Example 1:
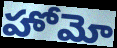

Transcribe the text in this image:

హోమో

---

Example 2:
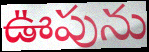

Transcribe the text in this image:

ఊపును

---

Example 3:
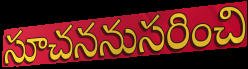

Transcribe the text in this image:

సూచననుసరించి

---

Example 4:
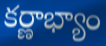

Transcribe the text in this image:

కర్ణాభ్యాం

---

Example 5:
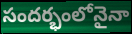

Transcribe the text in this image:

సందర్భంలోనైనా